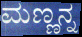
ಮಣ್ಣನ್ನ